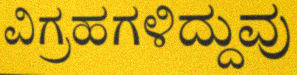
ವಿಗ್ರಹಗಳಿದ್ದುವು